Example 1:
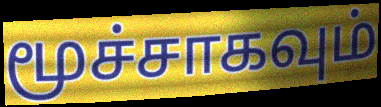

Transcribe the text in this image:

மூச்சாகவும்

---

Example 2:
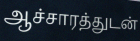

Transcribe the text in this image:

ஆச்சாரத்துடன்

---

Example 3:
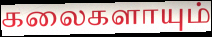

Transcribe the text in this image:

கலைகளாயும்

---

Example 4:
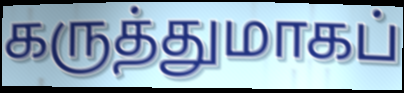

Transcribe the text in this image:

கருத்துமாகப்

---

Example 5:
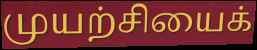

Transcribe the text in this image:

முயற்சியைக்